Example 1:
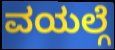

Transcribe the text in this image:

ವಯಲ್ಗೆ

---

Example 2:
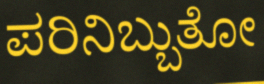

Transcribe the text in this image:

ಪರಿನಿಬ್ಬುತೋ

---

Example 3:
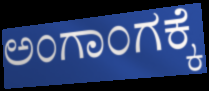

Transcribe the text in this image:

ಅಂಗಾಂಗಕ್ಕೆ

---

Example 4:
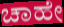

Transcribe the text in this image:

ಚಾಹೇ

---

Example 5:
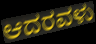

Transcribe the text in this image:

ಆದರವಳು